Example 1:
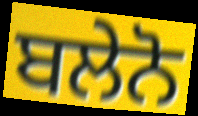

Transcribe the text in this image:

ਬਲੇਨੋ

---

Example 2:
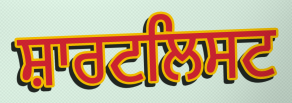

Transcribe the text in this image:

ਸ਼ਾਰਟਲਿਸਟ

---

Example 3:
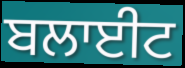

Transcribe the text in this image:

ਬਲਾਈਟ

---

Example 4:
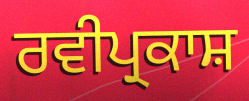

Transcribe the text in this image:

ਰਵੀਪ੍ਰਕਾਸ਼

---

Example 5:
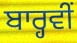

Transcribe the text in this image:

ਬਾਰ੍ਹਵੀਂ